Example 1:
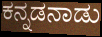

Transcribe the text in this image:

ಕನ್ನಡನಾಡು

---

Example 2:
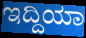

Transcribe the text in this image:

ಇದ್ದಿಯಾ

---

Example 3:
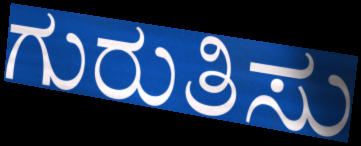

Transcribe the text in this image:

ಗುರುತಿಸು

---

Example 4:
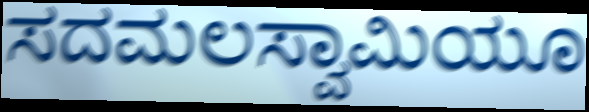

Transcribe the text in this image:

ಸದಮಲಸ್ವಾಮಿಯೂ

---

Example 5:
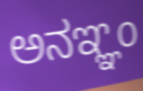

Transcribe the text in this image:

ಅನಞ್ಞಂ